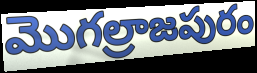
మొగల్రాజపురం